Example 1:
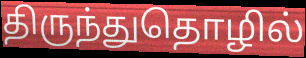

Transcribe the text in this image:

திருந்துதொழில்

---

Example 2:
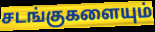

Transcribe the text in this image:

சடங்குகளையும்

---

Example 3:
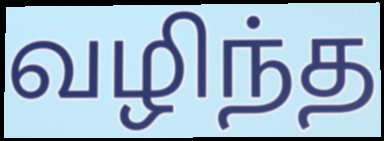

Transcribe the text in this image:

வழிந்த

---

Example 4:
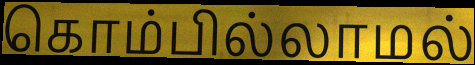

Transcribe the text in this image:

கொம்பில்லாமல்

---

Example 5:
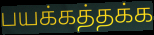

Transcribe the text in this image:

பயக்கத்தக்க